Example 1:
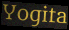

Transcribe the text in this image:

Yogita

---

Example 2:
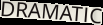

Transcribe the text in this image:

DRAMATIC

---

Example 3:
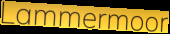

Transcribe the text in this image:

Lammermoor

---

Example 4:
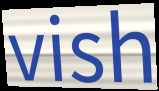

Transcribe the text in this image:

vish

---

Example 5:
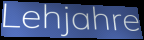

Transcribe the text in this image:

Lehjahre